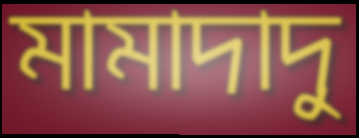
মামাদাদু